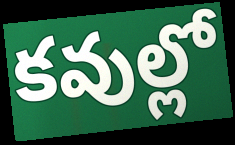
కవుల్లో